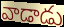
వాడాడు